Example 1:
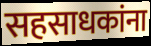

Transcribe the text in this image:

सहसाधकांना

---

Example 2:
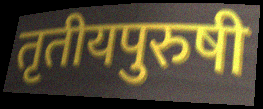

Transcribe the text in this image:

तृतीयपुरुषी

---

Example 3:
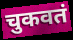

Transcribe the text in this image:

चुकवतं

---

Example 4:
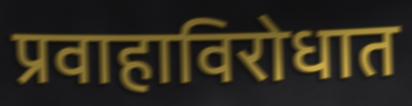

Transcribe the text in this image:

प्रवाहाविरोधात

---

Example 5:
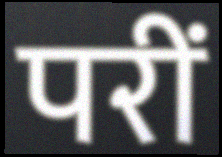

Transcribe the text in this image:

परीं